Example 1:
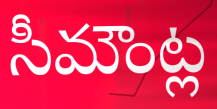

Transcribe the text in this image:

సీమౌంట్ల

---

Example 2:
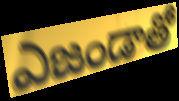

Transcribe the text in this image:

ఎజండాతో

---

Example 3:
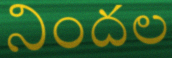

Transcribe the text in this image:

నిందల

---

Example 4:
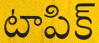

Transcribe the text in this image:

టాపిక్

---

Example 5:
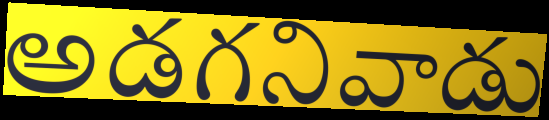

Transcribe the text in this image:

అడగనివాడు